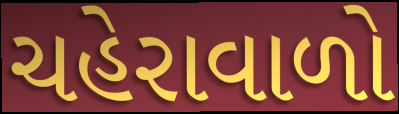
ચહેરાવાળો